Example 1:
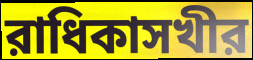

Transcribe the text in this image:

রাধিকাসখীর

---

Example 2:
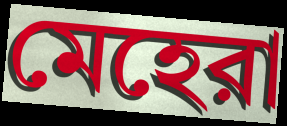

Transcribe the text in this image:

মেহেরা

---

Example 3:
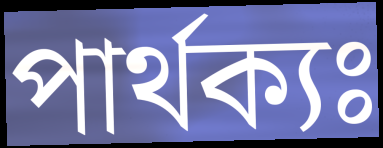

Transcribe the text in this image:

পার্থক্যঃ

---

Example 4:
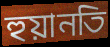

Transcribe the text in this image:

হুয়ানতি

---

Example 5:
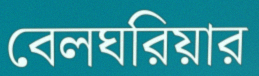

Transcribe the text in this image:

বেলঘরিয়ার